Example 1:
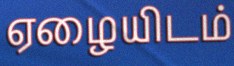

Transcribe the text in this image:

ஏழையிடம்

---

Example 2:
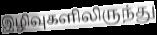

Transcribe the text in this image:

இழிவுகளிலிருந்து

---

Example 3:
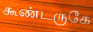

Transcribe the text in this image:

கூண்டருகே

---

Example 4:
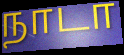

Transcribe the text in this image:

நாடா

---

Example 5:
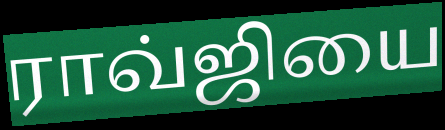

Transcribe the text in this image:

ராவ்ஜியை